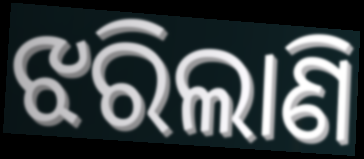
ଝରିଲାଣି